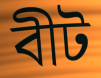
বীট